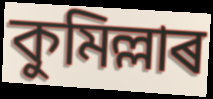
কুমিল্লাৰ